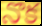
నొక